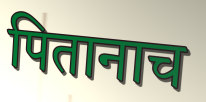
पितानाच